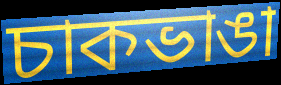
চাকভাঙা